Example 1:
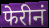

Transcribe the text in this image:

फेरीनं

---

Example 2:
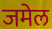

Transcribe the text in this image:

जमेल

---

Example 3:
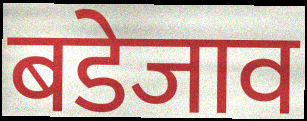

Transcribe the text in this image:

बडेजाव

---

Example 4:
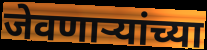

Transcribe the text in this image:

जेवणाऱ्यांच्या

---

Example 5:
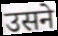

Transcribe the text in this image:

उसने